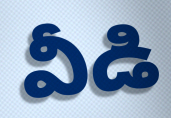
వీడి